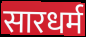
सारधर्म